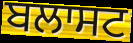
ਬਲਾਸਟ